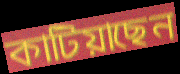
কাটিয়াছেন